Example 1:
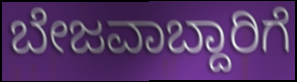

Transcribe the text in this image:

ಬೇಜವಾಬ್ದಾರಿಗೆ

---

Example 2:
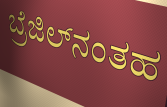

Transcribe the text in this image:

ಬ್ರೆಜಿಲ್‌ನಂತಹ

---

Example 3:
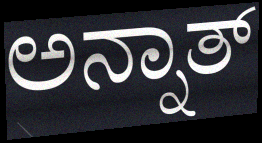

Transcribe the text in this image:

ಅನ್ನಾತ್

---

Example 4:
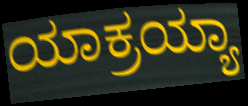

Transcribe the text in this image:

ಯಾಕ್ರಯ್ಯಾ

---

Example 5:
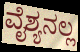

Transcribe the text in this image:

ವೈಶ್ಯನಲ್ಲ